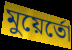
মুয়ের্তো